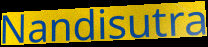
Nandisutra